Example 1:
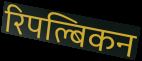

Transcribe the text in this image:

रिपल्बिकन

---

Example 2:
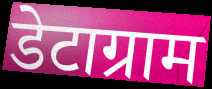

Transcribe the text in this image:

डेटाग्राम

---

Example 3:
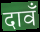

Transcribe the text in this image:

दावँ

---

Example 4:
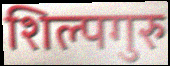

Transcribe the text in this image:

शिल्पगुरु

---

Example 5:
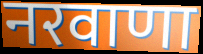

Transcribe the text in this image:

नरवाणा